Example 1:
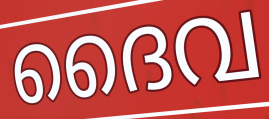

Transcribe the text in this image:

ദൈവ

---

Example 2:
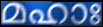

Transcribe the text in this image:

മഹാഃ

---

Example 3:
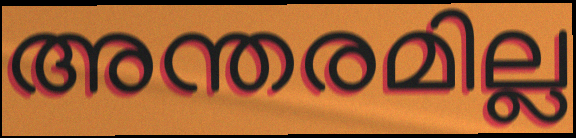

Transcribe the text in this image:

അന്തരമില്ല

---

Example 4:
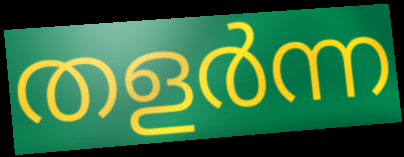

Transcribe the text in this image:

തളർന്ന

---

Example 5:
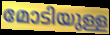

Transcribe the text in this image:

മോടിയുള്ള